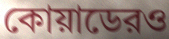
কোয়াডেরও